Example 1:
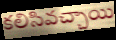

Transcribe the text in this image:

కలిసివచ్చాయి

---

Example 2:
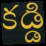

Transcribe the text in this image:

కడ్డి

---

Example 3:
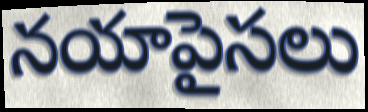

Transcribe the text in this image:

నయాపైసలు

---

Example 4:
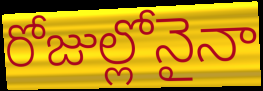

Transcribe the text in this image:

రోజుల్లోనైనా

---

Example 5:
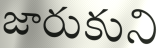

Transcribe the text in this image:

జారుకుని